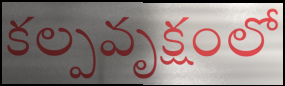
కల్పవృక్షంలో